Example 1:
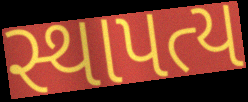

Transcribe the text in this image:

સ્થાપત્ય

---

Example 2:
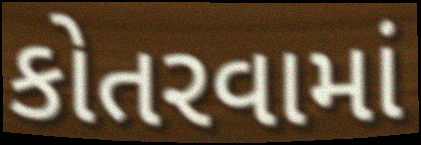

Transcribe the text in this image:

કોતરવામાં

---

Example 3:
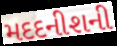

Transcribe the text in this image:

મદદનીશની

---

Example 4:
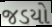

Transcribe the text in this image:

જડયો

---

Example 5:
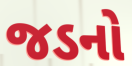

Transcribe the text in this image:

જડનો